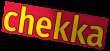
chekka